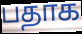
பதாக